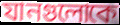
যানগুলোকে